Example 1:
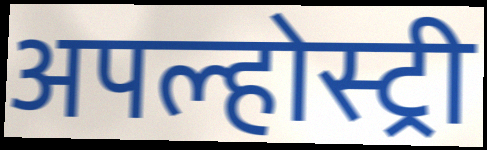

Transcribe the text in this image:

अपल्होस्ट्री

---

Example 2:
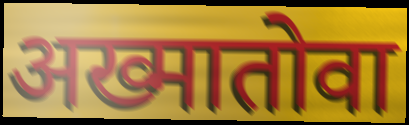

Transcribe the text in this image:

अख्मातोवा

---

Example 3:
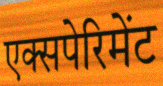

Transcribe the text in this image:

एक्सपेरिमेंट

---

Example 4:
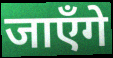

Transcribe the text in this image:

जाएँगे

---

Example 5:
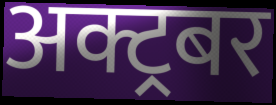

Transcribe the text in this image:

अक्ट्रबर